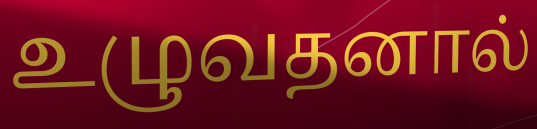
உழுவதனால்